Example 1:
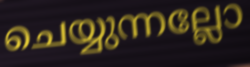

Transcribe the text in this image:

ചെയ്യുന്നല്ലോ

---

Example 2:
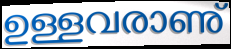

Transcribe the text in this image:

ഉള്ളവരാണു്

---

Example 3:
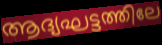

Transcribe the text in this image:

ആദ്യഘട്ടത്തിലേ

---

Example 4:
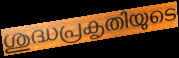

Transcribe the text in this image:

ശുദ്ധപ്രകൃതിയുടെ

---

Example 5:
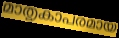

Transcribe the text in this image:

മാതൃകാപരമായ